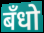
बँधो